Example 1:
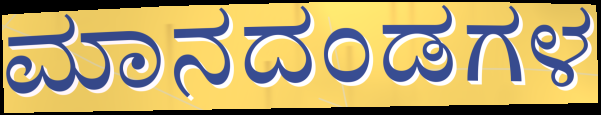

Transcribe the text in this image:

ಮಾನದಂಡಗಳ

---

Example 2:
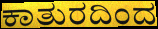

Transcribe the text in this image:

ಕಾತುರದಿಂದ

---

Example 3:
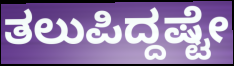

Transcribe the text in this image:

ತಲುಪಿದ್ದಷ್ಟೇ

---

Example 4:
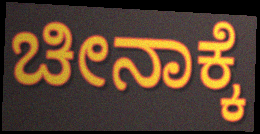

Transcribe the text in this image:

ಚೀನಾಕ್ಕೆ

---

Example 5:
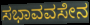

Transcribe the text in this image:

ಸಭಾವವಸೇನ